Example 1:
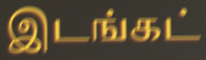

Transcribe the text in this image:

இடங்கட்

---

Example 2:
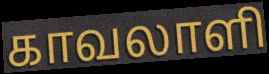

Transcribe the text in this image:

காவலாளி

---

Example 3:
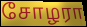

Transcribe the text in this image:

சோழரா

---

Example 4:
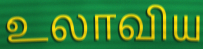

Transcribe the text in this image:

உலாவிய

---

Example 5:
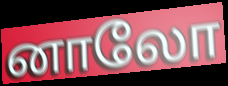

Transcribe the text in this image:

னாலோ